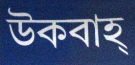
উকবাহ্